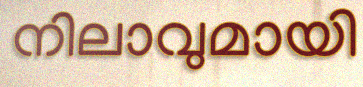
നിലാവുമായി